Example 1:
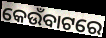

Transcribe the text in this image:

କେଉଁବାଟରେ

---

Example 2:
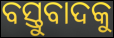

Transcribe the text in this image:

ବସ୍ତୁବାଦକୁ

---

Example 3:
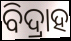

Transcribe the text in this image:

ବିଦ୍ରାହ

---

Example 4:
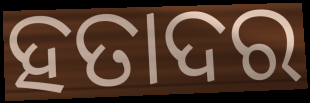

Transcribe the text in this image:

ହତାଦର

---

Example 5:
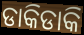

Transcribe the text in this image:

ଡାକିଡାକି